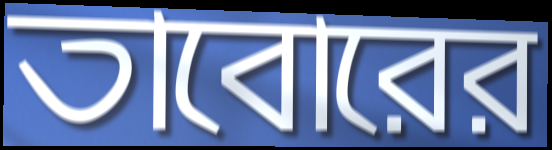
তাবোরের